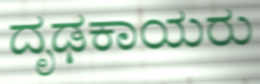
ದೃಢಕಾಯರು